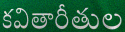
కవితారీతుల